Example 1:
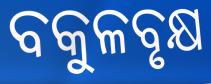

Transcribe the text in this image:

ବକୁଳବୃକ୍ଷ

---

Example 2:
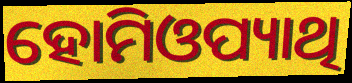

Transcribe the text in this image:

ହୋମିଓପ୍ୟାଥି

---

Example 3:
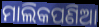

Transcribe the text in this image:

ମାଲିକପଣିଆ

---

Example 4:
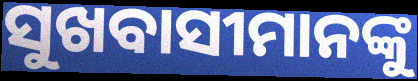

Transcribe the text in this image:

ସୁଖବାସୀମାନଙ୍କୁ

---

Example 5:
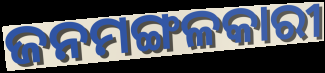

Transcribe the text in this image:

ଜନମଙ୍ଗଳକାରୀ